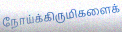
நோய்க்கிருமிகளைக்